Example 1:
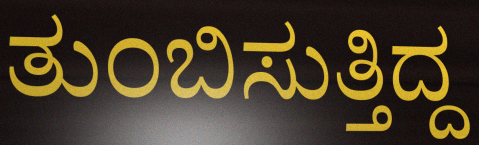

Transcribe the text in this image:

ತುಂಬಿಸುತ್ತಿದ್ದ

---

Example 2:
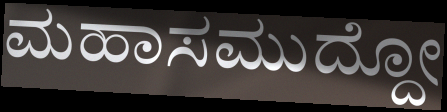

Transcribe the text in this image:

ಮಹಾಸಮುದ್ದೋ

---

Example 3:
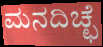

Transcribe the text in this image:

ಮನದಿಚ್ಛೆ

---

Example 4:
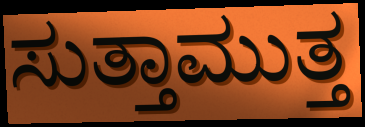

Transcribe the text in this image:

ಸುತ್ತಾಮುತ್ತ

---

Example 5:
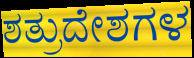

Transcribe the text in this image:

ಶತ್ರುದೇಶಗಳ